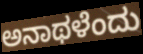
ಅನಾಥಳೆಂದು